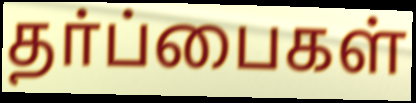
தர்ப்பைகள்